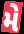
મે